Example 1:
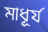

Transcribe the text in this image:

মাধূর্য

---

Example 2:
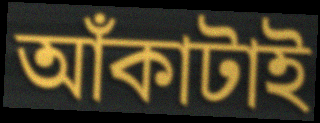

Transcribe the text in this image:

আঁকাটাই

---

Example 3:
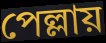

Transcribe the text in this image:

পেল্লায়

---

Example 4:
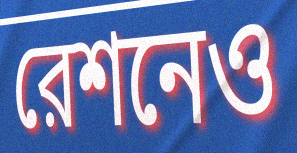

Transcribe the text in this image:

রেশনেও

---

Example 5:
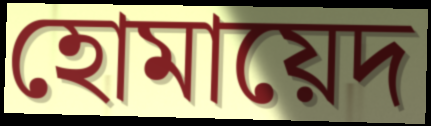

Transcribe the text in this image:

হোমায়েদ